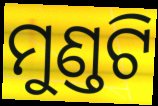
ମୁଣ୍ଡଟି